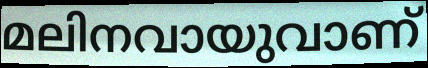
മലിനവായുവാണ്